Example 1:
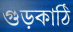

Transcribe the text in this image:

গুড়কাঠি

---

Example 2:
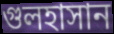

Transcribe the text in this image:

গুলহাসান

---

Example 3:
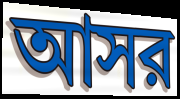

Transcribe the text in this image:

আসর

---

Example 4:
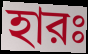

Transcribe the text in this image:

হারঃ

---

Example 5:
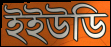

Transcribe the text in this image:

ইইউডি